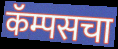
कॅम्पसचा